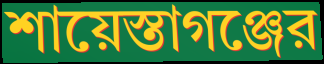
শায়েস্তাগঞ্জের